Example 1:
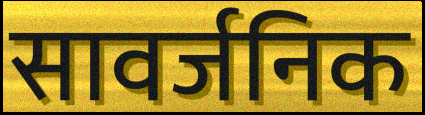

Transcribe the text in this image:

सावर्जनिक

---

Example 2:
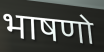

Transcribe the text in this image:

भाषणो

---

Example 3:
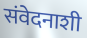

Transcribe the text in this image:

संवेदनाशी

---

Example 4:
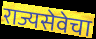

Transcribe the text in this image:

राज्यसेवेचा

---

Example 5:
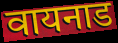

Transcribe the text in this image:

वायनाड